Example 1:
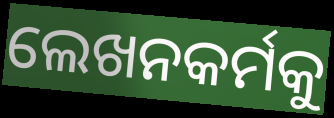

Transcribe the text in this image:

ଲେଖନକର୍ମକୁ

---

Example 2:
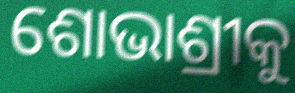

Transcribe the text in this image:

ଶୋଭାଶ୍ରୀକୁ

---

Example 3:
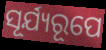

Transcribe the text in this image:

ସୂର୍ଯ୍ୟରୂପେ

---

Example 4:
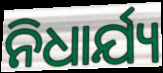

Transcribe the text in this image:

ନିଧାର୍ଯ୍ୟ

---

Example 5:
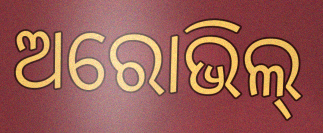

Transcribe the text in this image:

ଅରୋଭିଲ୍